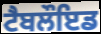
ਟੈਬਲੌਇਡ